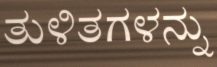
ತುಳಿತಗಳನ್ನು